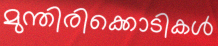
മുന്തിരിക്കൊടികൾ